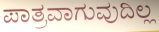
ಪಾತ್ರವಾಗುವುದಿಲ್ಲ